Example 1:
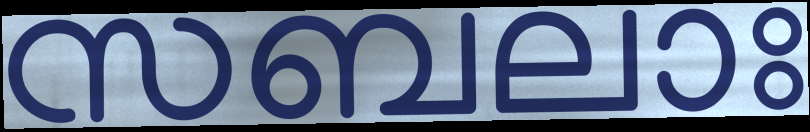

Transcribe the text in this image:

സബലാഃ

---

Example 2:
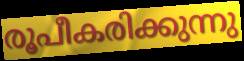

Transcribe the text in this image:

രൂപീകരിക്കുന്നു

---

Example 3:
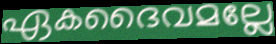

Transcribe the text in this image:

ഏകദൈവമല്ലേ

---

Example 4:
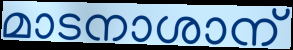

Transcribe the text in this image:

മാടനാശാന്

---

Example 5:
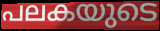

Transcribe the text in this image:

പലകയുടെ